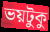
ভয়টুকু